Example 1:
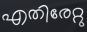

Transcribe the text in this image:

എതിരേറ്റു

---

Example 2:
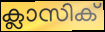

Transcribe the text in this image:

ക്ലാസിക്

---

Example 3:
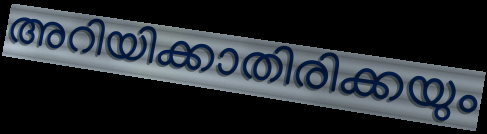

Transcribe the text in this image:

അറിയിക്കാതിരിക്കയും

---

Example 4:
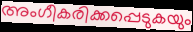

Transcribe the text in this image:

അംഗീകരിക്കപ്പെടുകയും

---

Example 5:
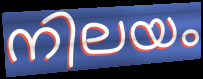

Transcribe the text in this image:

നിലയം